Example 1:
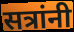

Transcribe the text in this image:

सत्रांनी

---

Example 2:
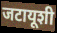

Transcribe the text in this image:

जटायूशी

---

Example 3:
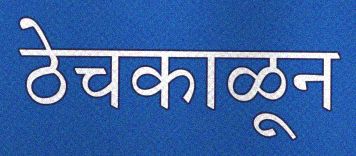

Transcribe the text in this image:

ठेचकाळून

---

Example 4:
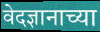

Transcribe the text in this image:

वेदज्ञानाच्या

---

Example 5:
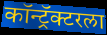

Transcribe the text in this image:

कॉन्ट्रॅक्टरला